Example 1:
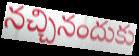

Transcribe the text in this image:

నచ్చినందుకు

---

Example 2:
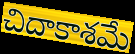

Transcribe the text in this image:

చిదాకాశమే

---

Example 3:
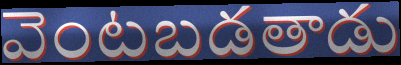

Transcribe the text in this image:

వెంటబడతాడు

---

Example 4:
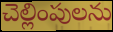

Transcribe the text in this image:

చెల్లింపులను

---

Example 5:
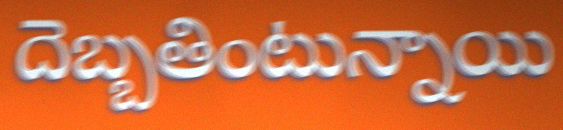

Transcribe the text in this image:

దెబ్బతింటున్నాయి